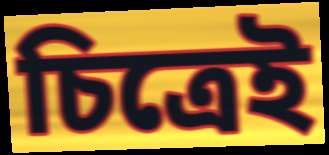
চিত্রেই